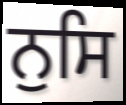
ਨੁਸਿ